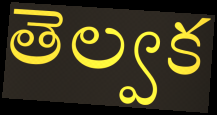
తెల్వక